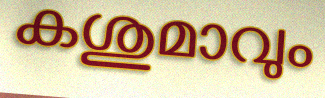
കശുമാവും